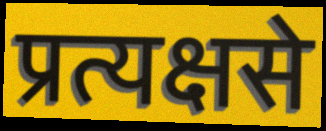
प्रत्यक्षसे